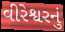
વીરેશ્વરનું